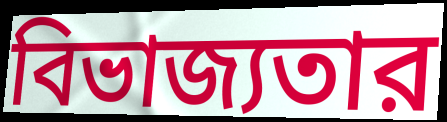
বিভাজ্যতার